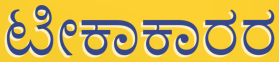
ಟೀಕಾಕಾರರ